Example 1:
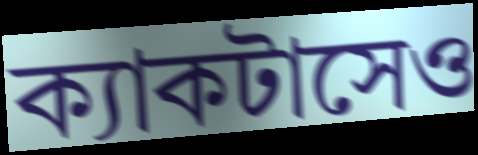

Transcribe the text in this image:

ক্যাকটাসেও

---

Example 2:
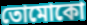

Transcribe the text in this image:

তোমোকো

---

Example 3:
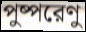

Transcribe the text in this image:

পুষ্পরেণু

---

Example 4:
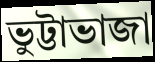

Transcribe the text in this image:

ভুট্টাভাজা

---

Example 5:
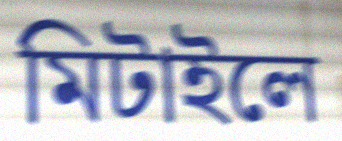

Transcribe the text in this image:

মিটাইলে